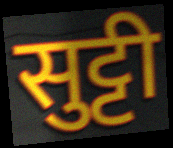
सुट्टी